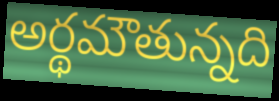
అర్థమౌతున్నది